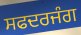
ਸਫਦਰਜੰਗ